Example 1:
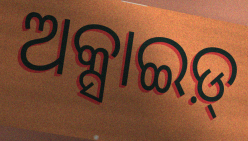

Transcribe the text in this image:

ଅକ୍ସାଇଡ଼୍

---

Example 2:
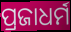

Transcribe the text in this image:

ପ୍ରଜାଧର୍ମ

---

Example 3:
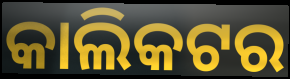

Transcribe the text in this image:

କାଲିକଟର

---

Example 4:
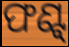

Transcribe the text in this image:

ଫଣ୍ଟ୍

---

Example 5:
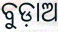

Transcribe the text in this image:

ବୁଡ଼ାଅ